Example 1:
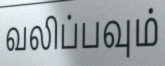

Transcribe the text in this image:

வலிப்பவும்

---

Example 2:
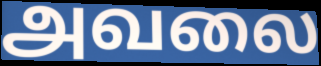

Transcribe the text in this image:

அவலை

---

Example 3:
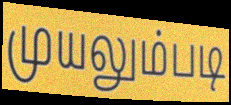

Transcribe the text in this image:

முயலும்படி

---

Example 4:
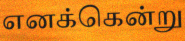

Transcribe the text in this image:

எனக்கென்று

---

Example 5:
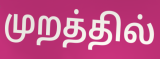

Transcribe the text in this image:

முறத்தில்